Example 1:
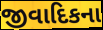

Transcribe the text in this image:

જીવાદિકના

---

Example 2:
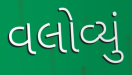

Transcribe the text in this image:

વલોવ્યું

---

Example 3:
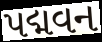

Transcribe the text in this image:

પદ્મવન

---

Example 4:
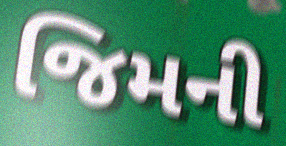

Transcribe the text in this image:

જિમની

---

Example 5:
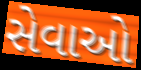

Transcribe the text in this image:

સેવાઓ